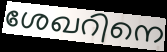
ശേഖറിനെ